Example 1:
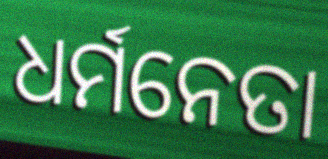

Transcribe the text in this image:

ଧର୍ମନେତା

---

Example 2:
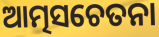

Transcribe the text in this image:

ଆତ୍ମସଚେତନା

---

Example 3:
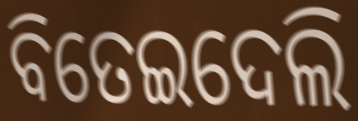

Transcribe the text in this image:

ବିତେଇଦେଲି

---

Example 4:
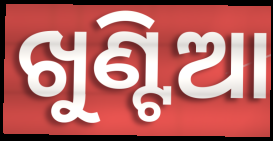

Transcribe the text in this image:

ଖୁଣ୍ଟିଆ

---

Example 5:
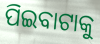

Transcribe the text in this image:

ପିଇବାଟାକୁ